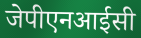
जेपीएनआईसी